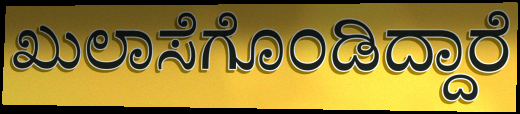
ಖುಲಾಸೆಗೊಂಡಿದ್ದಾರೆ